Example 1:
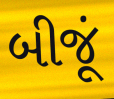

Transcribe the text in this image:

બીજૂં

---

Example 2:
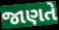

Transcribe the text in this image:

જાણતે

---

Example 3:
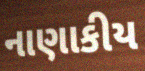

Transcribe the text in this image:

નાણાકીય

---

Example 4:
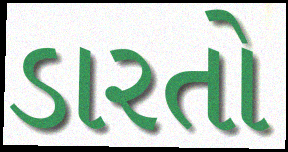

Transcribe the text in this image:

ડારતો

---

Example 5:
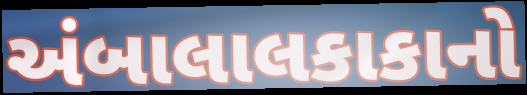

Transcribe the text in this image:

અંબાલાલકાકાનો